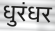
धुरंधर